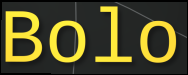
Bolo